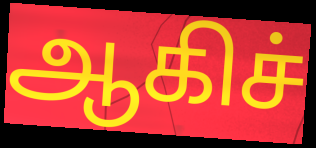
ஆகிச்